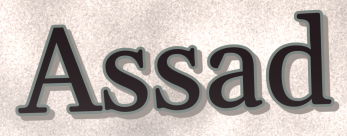
Assad